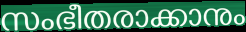
സംഭീതരാക്കാനും